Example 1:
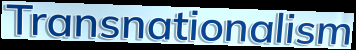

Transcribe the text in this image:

Transnationalism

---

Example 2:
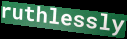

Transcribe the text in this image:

ruthlessly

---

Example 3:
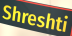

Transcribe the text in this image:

Shreshti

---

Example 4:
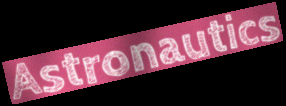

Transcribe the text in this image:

Astronautics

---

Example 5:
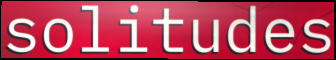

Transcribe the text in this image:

solitudes